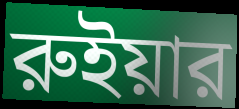
রুইয়ার